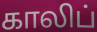
காலிப்